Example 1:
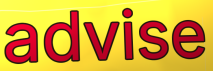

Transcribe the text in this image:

advise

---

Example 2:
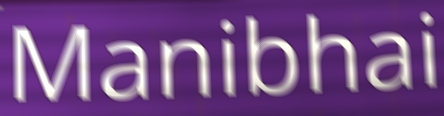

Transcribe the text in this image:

Manibhai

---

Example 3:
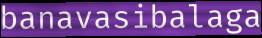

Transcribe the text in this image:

banavasibalaga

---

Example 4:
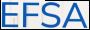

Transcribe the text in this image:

EFSA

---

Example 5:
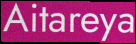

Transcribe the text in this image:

Aitareya